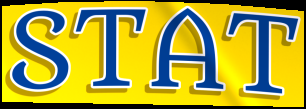
STAT